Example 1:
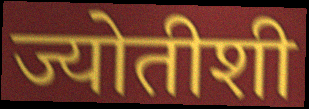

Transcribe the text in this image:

ज्योतीशी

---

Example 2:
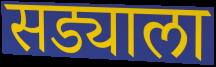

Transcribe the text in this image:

सड्याला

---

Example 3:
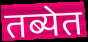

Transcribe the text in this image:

तब्येत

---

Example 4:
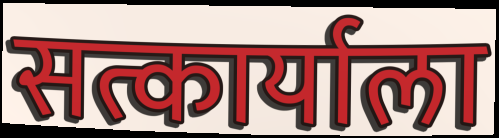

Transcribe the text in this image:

सत्कार्याला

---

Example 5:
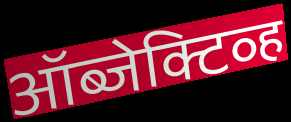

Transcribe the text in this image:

ऑब्जेक्टिव्ह